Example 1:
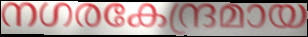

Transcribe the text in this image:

നഗരകേന്ദ്രമായ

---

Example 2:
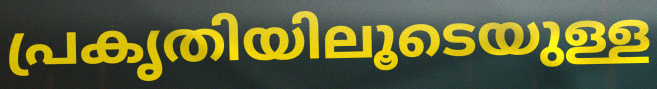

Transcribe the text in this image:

പ്രകൃതിയിലൂടെയുള്ള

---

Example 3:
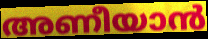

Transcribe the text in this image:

അണീയാൻ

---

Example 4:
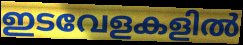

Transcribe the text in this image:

ഇടവേളകളിൽ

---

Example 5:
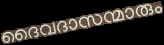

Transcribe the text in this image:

ദൈവദാസന്മാരും